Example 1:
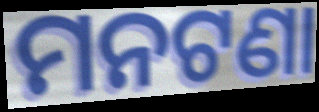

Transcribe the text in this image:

ମନଟଣା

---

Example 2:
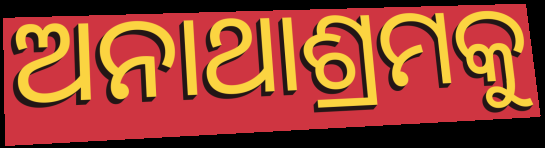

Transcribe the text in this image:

ଅନାଥାଶ୍ରମକୁ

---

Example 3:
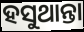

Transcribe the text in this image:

ହସୁଥାନ୍ତା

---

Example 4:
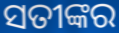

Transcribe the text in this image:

ସତୀଙ୍କର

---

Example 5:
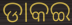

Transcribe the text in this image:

ଡାକଇ